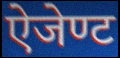
ऐजेण्ट